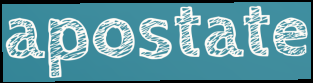
apostate